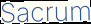
Sacrum